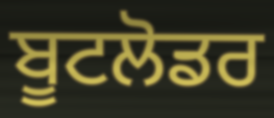
ਬੂਟਲੋਡਰ